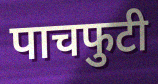
पाचफुटी